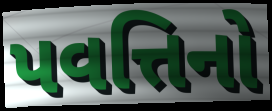
પવત્તિનો